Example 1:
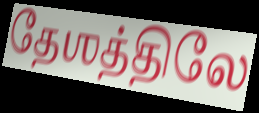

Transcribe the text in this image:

தேஶத்திலே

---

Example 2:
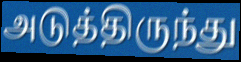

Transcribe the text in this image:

அடுத்திருந்து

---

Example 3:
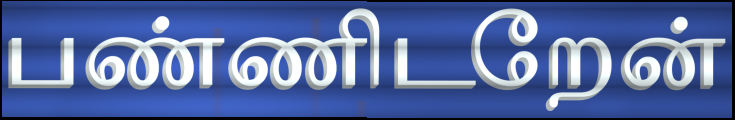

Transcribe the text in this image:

பண்ணிடறேன்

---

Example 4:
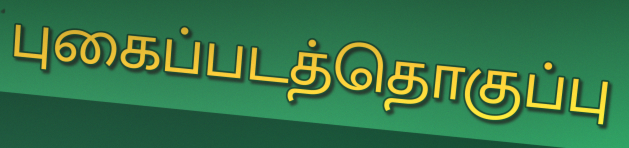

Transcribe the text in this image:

புகைப்படத்தொகுப்பு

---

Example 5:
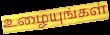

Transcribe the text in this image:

உழையுங்கள்